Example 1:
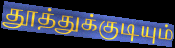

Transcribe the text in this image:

தூத்துக்குடியும்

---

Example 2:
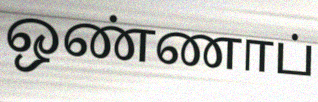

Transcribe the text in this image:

ஒண்ணாப்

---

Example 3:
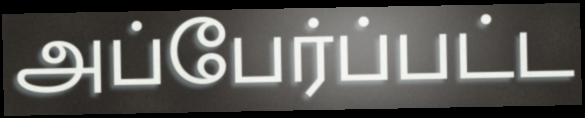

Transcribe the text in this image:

அப்பேர்ப்பட்ட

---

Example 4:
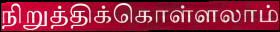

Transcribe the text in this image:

நிறுத்திக்கொள்ளலாம்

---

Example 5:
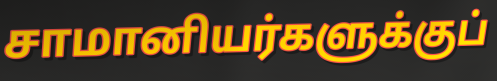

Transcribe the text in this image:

சாமானியர்களுக்குப்